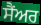
ਸੈਂਅਰ